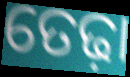
ତେଢ଼ା